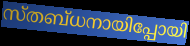
സ്തബ്ധനായിപ്പോയി